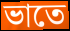
ভাতে